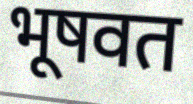
भूषवत